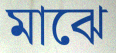
মাঝে